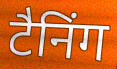
टैनिंग